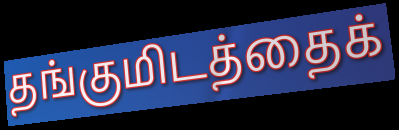
தங்குமிடத்தைக்